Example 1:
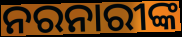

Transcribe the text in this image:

ନରନାରୀଙ୍କ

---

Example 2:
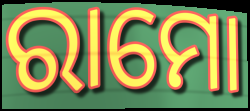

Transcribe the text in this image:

ରାମୋ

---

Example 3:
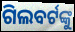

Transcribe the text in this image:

ଗିଲବର୍ଟଙ୍କୁ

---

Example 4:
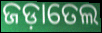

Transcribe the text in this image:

ଜଡ଼ାତେଲ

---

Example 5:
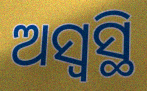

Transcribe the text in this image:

ଅସ୍ୱସ୍ଥି